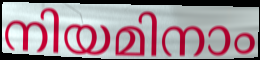
നിയമിനാം